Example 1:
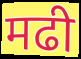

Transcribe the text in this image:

मढी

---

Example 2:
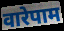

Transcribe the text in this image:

वारेपाम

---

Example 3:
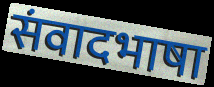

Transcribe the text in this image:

संवादभाषा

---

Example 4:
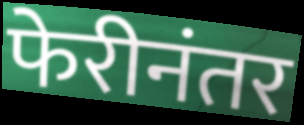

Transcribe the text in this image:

फेरीनंतर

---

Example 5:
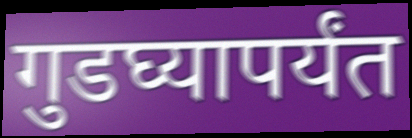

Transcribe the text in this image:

गुडघ्यापर्यंत